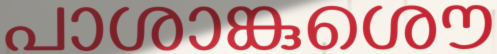
പാശാങ്കുശൌ